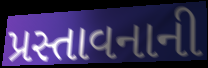
પ્રસ્તાવનાની